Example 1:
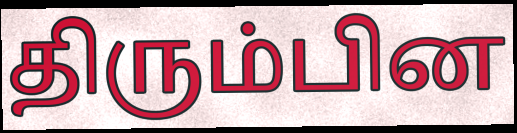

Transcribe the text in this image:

திரும்பின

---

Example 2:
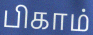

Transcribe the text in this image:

பிகாம்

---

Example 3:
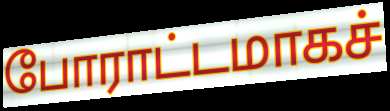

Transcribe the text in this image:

போராட்டமாகச்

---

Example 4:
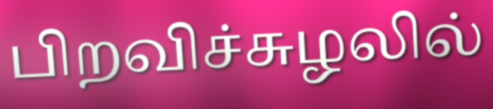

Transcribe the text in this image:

பிறவிச்சுழலில்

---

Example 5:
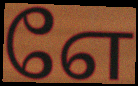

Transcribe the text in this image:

எே